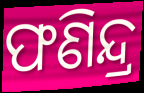
ଫଣିନ୍ଦ୍ର